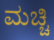
ಮಚ್ಚಿ